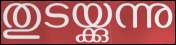
തുടയ്ക്കുന്നു